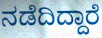
ನಡೆದಿದ್ದಾರೆ